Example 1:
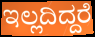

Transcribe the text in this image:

ಇಲ್ಲದಿದ್ದರೆ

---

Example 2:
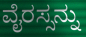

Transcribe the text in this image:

ವೈರಸ್ಸನ್ನು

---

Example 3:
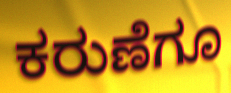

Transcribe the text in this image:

ಕರುಣೆಗೂ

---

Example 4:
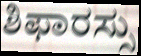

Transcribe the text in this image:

ಶಿಫಾರಸ್ಸು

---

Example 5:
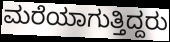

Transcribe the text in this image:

ಮರೆಯಾಗುತ್ತಿದ್ದರು